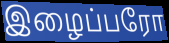
இழைப்பரோ